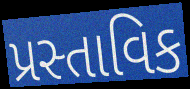
પ્રસ્તાવિક